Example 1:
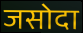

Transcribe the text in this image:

जसोदा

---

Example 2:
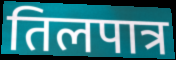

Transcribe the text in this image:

तिलपात्र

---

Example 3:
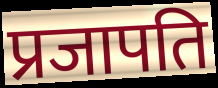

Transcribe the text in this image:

प्रजापति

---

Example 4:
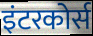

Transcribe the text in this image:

इंटरकोर्स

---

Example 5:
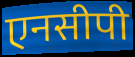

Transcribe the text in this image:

एनसीपी